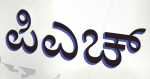
ಪಿಎಚ್